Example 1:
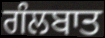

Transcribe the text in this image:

ਗੰਲਬਾਤ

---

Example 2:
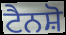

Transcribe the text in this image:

ਟੈਨਸ਼ੋ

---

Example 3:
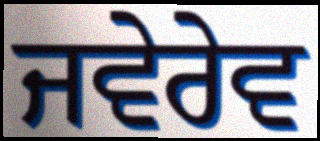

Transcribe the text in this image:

ਜਵੇਰੇਵ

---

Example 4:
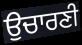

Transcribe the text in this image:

ਉਚਾਰਣੀ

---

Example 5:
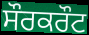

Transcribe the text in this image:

ਸੌਰਕਰੌਟ